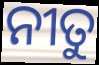
ନୀତୁ